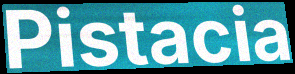
Pistacia